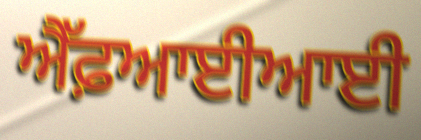
ਐੱਫ਼ਆਈਆਈ